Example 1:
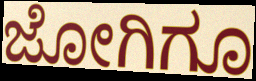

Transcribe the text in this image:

ಜೋಗಿಗೂ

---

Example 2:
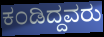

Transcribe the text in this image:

ಕಂಡಿದ್ದವರು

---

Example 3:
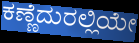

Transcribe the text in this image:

ಕಣ್ಣೆದುರಲ್ಲಿಯೇ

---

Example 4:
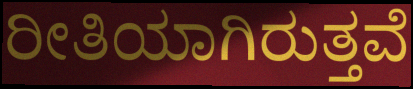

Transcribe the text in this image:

ರೀತಿಯಾಗಿರುತ್ತವೆ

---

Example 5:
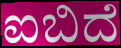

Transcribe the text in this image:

ಐಬಿದೆ